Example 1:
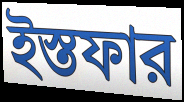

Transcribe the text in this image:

ইস্তফার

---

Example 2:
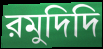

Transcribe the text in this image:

রমুদিদি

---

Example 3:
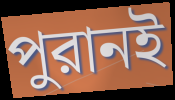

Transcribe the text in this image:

পুরানই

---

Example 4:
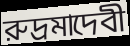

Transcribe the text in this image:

রুদ্রমাদেবী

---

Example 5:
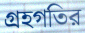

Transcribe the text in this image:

গ্রহগতির